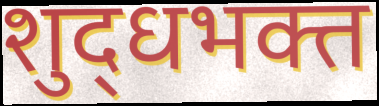
शुद्धभक्त